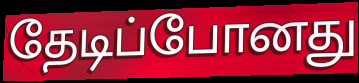
தேடிப்போனது